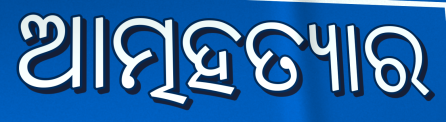
ଆତ୍ମହତ୍ୟାର